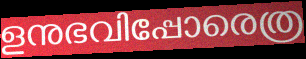
ളനുഭവിപ്പോരെത്ര